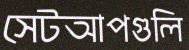
সেটআপগুলি